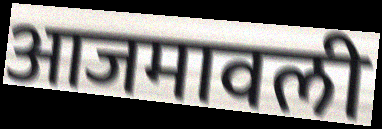
आजमावली